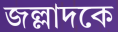
জল্লাদকে